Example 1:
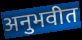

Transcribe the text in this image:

अनुभवीत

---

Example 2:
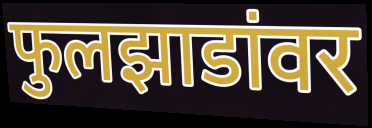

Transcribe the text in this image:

फुलझाडांवर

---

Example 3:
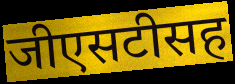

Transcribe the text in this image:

जीएसटीसह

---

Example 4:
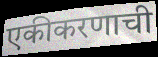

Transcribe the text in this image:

एकीकरणाची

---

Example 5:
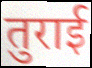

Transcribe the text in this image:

तुराई